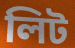
লিট